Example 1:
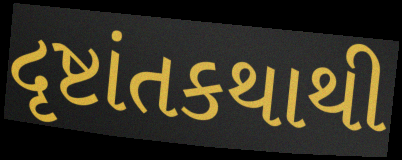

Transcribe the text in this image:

દૃષ્ટાંતકથાથી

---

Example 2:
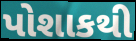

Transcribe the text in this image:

પોશાકથી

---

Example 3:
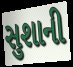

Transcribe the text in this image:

સુશાની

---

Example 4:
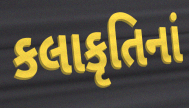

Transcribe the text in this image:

કલાકૃતિનાં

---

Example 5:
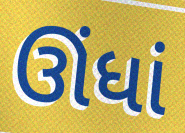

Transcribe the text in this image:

ઊંધાં